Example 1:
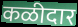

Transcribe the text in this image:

कळीदार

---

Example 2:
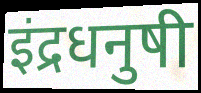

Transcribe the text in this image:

इंद्रधनुषी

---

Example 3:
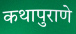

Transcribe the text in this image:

कथापुराणे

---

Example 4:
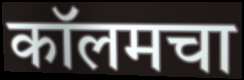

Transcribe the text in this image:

कॉलमचा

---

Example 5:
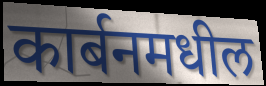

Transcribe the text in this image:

कार्बनमधील